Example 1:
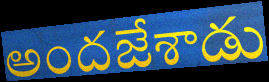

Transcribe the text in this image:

అందజేశాడు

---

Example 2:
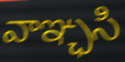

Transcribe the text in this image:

వాఞ్ఛసి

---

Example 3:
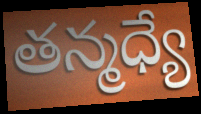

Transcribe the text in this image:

తన్మధ్యే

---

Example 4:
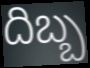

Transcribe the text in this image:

దిబ్బ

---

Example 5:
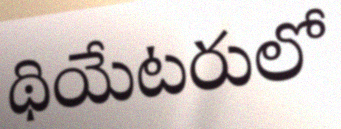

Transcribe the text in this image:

థియేటరులో